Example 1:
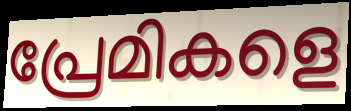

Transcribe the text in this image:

പ്രേമികളെ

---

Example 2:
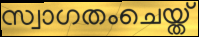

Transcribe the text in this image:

സ്വാഗതംചെയ്ത്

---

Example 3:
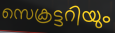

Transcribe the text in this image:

സെക്രട്ടറിയും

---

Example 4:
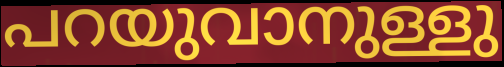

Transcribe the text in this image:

പറയുവാനുള്ളു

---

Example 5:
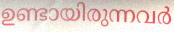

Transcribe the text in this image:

ഉണ്ടായിരുന്നവർ